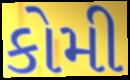
કોમી